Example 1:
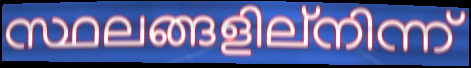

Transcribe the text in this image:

സ്ഥലങ്ങളില്നിന്ന്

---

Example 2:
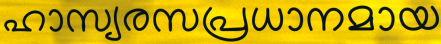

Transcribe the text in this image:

ഹാസ്യരസപ്രധാനമായ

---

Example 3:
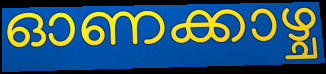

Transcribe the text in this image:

ഓണക്കാഴ്ച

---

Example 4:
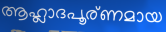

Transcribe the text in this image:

ആഹ്ലാദപൂര്ണമായ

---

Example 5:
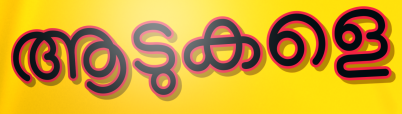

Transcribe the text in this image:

ആടുകളെ